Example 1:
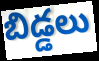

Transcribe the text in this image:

బిడ్డలు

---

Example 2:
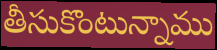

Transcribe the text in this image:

తీసుకొంటున్నాము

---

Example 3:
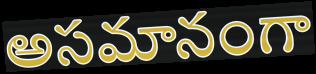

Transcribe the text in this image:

అసమానంగా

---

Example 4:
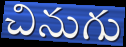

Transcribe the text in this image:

చినుగు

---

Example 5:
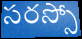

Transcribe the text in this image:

సరస్సో